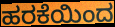
ಹರಕೆಯಿಂದ